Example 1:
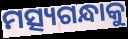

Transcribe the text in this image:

ମତ୍ସ୍ୟଗନ୍ଧାକୁ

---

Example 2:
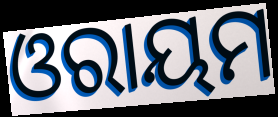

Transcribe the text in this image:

ଓରାୟମ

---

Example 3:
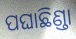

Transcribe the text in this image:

ପଘାଛିଣ୍ଡା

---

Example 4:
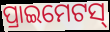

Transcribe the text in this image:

ପ୍ରାଇମେଟସ୍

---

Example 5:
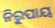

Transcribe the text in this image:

ନିରୁପାୟ